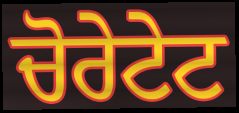
ਚੋਰੇਟੇਟ